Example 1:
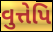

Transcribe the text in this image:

વુત્તેપિ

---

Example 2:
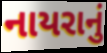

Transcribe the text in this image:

નાયરાનું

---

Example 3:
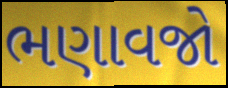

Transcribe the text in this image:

ભણાવજો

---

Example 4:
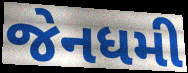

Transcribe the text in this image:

જેનધમી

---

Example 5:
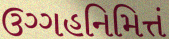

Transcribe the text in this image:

ઉગ્ગહનિમિત્તં